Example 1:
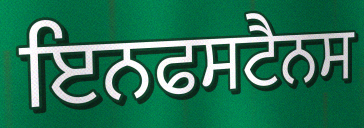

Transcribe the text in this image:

ਇਨਫਸਟੈਨਸ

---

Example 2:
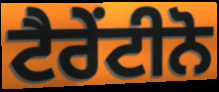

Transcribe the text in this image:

ਟੈਰੇਂਟੀਨੋ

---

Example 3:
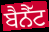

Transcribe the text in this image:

ਬੈਨੈੱਟ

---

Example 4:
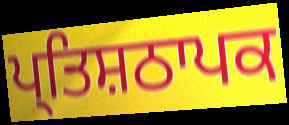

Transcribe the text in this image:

ਪ੍ਤਿਸ਼ਠਾਪਕ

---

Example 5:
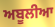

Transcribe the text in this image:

ਅਬੂਲੀਆ